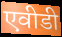
एवीडी